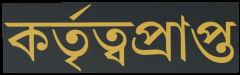
কৰ্তৃত্বপ্ৰাপ্ত